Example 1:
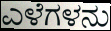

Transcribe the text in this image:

ಎಳೆಗಳನು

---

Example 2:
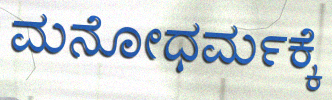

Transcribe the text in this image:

ಮನೋಧರ್ಮಕ್ಕೆ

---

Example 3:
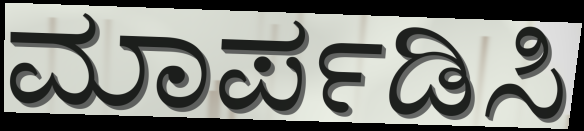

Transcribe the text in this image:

ಮಾರ್ಪಡಿಸಿ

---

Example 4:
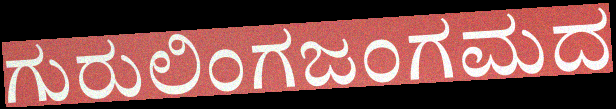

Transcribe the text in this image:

ಗುರುಲಿಂಗಜಂಗಮದ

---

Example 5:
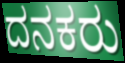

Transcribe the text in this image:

ದನಕರು